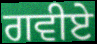
ਗਵੀਏ